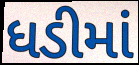
ધડીમાં